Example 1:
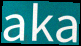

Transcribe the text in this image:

aka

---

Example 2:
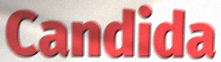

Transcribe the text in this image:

Candida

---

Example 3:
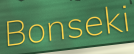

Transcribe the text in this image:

Bonseki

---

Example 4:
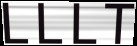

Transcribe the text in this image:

LLLT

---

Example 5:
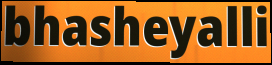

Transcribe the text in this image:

bhasheyalli